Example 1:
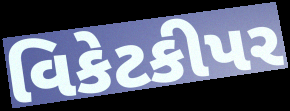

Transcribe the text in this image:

વિકેટકીપર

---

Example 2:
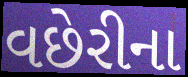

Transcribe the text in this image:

વછેરીના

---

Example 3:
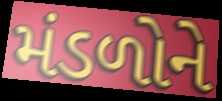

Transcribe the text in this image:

મંડળોને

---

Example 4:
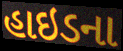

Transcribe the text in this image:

હાઇડના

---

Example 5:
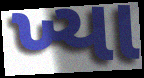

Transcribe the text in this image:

ખ્યા